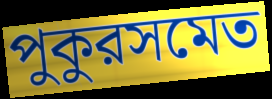
পুকুরসমেত